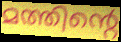
മത്തിന്റെ